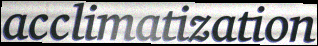
acclimatization